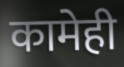
कामेही